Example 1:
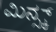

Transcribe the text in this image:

ಮಿನ್ಸ್ಕ್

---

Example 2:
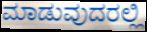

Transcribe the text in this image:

ಮಾಡುವುದರಲ್ಲಿ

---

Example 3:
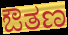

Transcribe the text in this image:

ಔತಣ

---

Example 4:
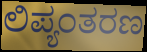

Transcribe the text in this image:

ಲಿಪ್ಯಂತರಣ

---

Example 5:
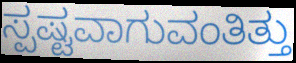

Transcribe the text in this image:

ಸ್ಪಷ್ಟವಾಗುವಂತಿತ್ತು